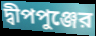
দ্বীপপুঞ্জের